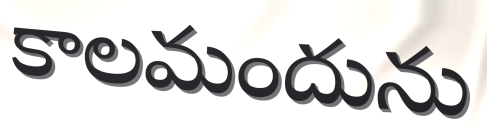
కాలమందును